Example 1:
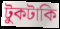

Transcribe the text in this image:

টুকটাকি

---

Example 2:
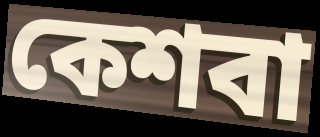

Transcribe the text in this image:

কেশবা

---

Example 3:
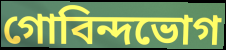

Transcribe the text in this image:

গোবিন্দভোগ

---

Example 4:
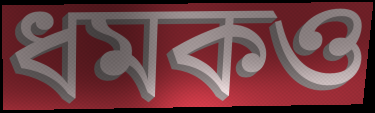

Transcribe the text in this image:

ধমকও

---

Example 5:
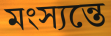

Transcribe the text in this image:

মংস্যন্তে